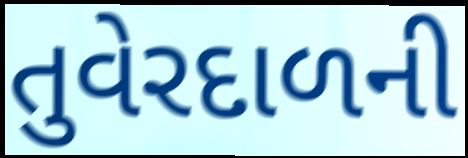
તુવેરદાળની